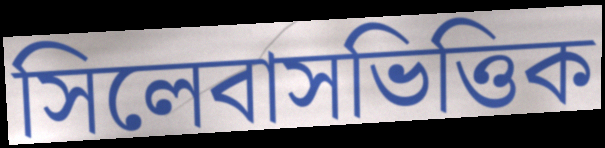
সিলেবাসভিত্তিক